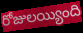
రోజులయ్యింది